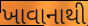
ખાવાનાથી